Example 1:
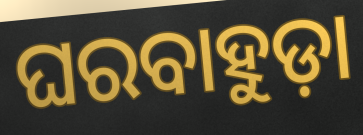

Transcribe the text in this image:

ଘରବାହୁଡ଼ା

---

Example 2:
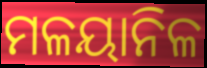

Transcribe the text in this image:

ମଳୟାନିଳ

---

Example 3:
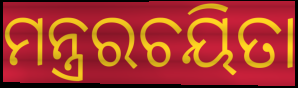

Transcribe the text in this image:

ମନ୍ତ୍ରରଚୟିତା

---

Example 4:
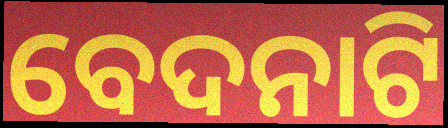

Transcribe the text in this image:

ବେଦନାଟି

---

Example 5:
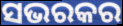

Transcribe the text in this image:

ସଭରକର